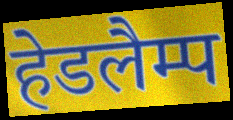
हेडलैम्प